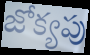
జోక్యపు